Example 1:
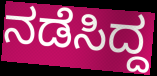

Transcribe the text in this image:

ನಡೆಸಿದ್ದ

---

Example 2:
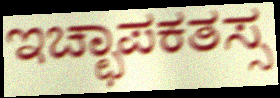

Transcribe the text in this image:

ಇಚ್ಛಾಪಕತಸ್ಸ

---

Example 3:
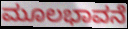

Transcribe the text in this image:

ಮೂಲಭಾವನೆ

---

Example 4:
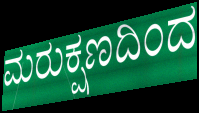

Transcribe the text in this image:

ಮರುಕ್ಷಣದಿಂದ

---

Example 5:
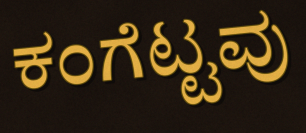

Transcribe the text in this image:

ಕಂಗೆಟ್ಟವು